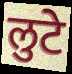
लुटे